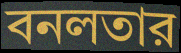
বনলতার